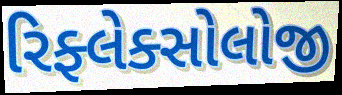
રિફ્લેક્સોલોજી